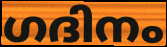
ഗദിനം